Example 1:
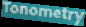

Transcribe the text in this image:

Tonometry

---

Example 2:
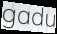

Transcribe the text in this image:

gadu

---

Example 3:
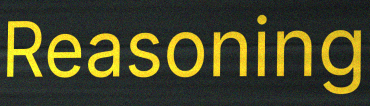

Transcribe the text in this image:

Reasoning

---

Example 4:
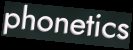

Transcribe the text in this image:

phonetics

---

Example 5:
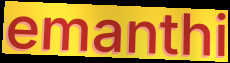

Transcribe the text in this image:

emanthi